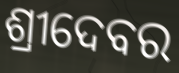
ଶ୍ରୀଦେବର